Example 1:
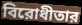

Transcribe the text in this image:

বিরোধীতার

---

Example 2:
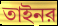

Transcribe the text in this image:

তাইনর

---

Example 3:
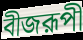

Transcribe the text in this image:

বীজরূপী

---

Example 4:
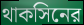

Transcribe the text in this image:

থাকসিনের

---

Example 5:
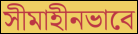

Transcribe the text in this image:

সীমাহীনভাবে